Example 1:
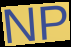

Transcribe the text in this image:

NP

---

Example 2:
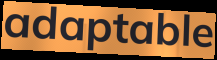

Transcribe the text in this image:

adaptable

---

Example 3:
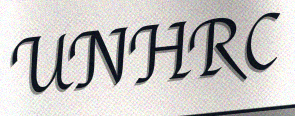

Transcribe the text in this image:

UNHRC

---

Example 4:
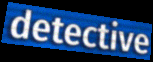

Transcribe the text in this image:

detective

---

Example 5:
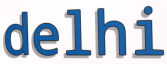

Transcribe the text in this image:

delhi